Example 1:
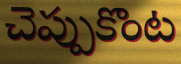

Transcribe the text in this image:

చెప్పుకొంట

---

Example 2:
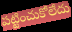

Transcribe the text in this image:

పట్టించుకోలేదు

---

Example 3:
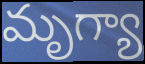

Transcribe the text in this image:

మృగ్యా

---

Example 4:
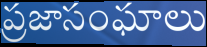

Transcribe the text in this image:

ప్రజాసంఘాలు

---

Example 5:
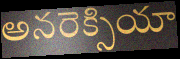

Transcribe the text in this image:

అనరెక్సియా